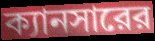
ক্যানসারের